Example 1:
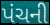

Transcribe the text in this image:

પંચની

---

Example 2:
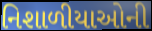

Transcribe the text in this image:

નિશાળીયાઓની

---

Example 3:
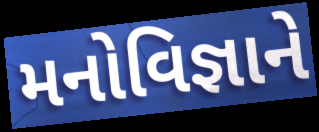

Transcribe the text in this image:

મનોવિજ્ઞાને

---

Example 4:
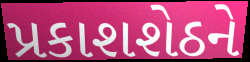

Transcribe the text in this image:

પ્રકાશશેઠને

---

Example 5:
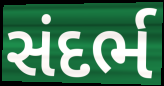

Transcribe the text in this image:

સંદર્ભ